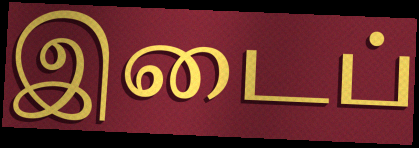
இடைப்